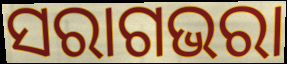
ସରାଗଭରା